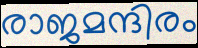
രാജമന്ദിരം